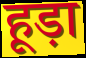
हूड़ा